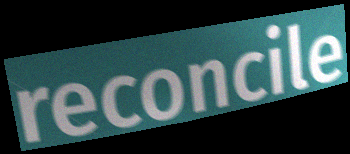
reconcile